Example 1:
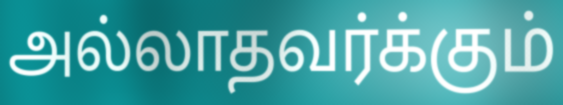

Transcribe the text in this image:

அல்லாதவர்க்கும்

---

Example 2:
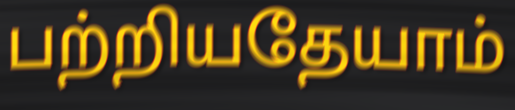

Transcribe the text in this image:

பற்றியதேயாம்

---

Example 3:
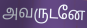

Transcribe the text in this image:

அவருடனே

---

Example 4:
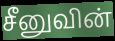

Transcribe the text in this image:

சீனுவின்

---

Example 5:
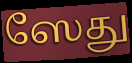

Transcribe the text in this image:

ஸேது